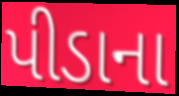
પીડાના